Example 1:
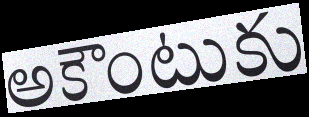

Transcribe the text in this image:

అకౌంటుకు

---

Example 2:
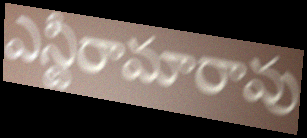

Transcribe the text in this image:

ఎన్టీరామారావు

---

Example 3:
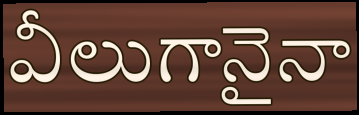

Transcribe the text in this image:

వీలుగానైనా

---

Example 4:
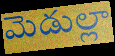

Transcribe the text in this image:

మెడుల్లా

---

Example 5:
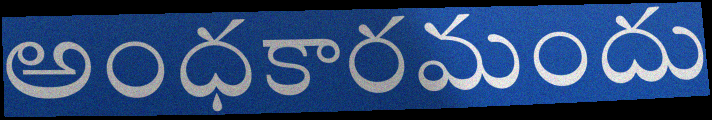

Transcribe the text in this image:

అంధకారమందు